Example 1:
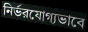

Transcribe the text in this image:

নির্ভরযোগ্যভাবে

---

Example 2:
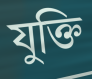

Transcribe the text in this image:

যুক্তি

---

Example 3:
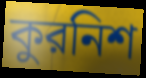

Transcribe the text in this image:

কুরনিশ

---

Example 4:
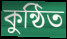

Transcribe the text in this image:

কুন্ঠিত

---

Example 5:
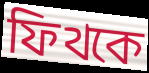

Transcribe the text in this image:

ফিথকে